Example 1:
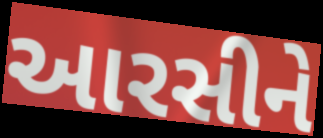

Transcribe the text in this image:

આરસીને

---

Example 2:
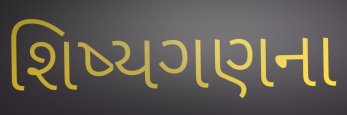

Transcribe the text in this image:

શિષ્યગણના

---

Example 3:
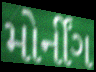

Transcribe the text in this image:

મોર્નીંગ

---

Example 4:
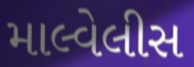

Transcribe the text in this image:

માલ્વેલીસ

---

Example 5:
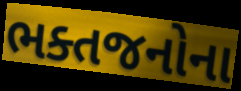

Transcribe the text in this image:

ભક્તજનોના